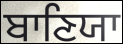
ਬਾਣਿਯਾ